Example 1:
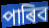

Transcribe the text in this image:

পাৰিব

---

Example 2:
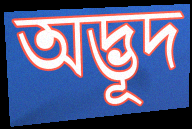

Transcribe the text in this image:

অদ্ভূদ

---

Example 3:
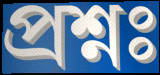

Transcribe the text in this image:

প্ৰশ্নঃ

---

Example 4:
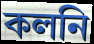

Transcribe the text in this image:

কলনি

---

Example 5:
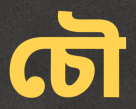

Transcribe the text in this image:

চৌ